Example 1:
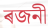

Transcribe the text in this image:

ৰজনী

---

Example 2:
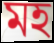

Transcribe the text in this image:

মহ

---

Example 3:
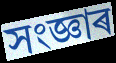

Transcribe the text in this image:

সংজ্ঞাৰ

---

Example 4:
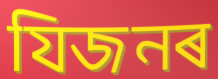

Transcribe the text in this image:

যিজনৰ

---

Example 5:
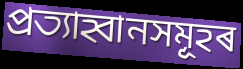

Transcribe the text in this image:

প্ৰত্যাহ্বানসমূহৰ